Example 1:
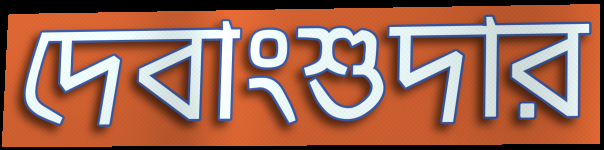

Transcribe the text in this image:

দেবাংশুদার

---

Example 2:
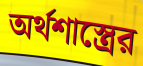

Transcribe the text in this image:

অর্থশাস্ত্রের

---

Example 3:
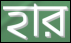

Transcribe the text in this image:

হার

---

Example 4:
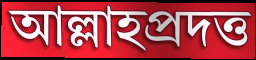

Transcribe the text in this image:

আল্লাহপ্রদত্ত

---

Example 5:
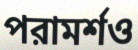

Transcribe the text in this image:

পরামর্শও